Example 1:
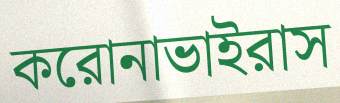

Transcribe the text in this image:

করোনাভাইরাস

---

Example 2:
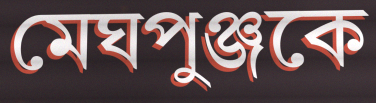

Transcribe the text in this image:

মেঘপুঞ্জকে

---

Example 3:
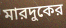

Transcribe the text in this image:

মারদুকের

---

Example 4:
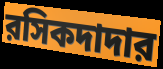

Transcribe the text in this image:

রসিকদাদার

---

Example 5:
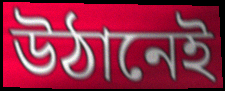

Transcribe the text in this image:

উঠানেই